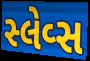
સ્લેવ્સ